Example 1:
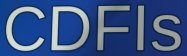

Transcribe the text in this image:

CDFIs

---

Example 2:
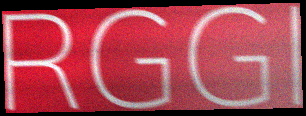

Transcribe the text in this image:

RGGI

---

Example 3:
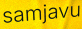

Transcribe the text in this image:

samjavu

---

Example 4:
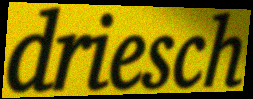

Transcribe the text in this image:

driesch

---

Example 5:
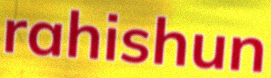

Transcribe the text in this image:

rahishun